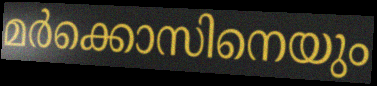
മർക്കൊസിനെയും